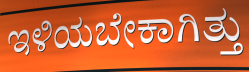
ಇಳಿಯಬೇಕಾಗಿತ್ತು